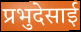
प्रभुदेसाई